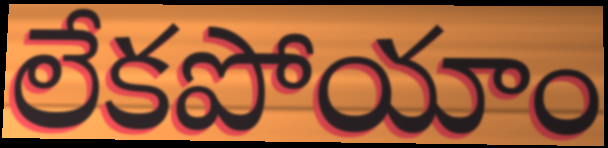
లేకపోయాం